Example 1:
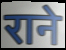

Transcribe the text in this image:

राने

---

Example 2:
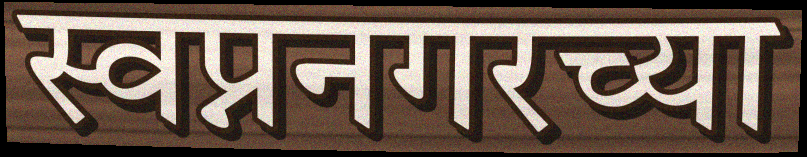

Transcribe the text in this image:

स्वप्ननगरच्या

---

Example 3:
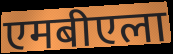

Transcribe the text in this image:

एमबीएला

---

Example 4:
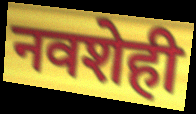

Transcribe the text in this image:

नवशेही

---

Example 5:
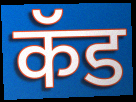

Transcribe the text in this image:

कॅड